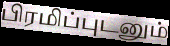
பிரமிப்புடனும்